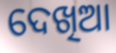
ଦେଖିଆ